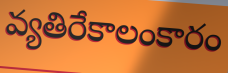
వ్యతిరేకాలంకారం